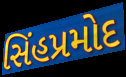
સિંહપ્રમોદ